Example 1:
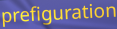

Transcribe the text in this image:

prefiguration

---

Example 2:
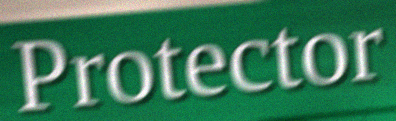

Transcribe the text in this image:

Protector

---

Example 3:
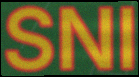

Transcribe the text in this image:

SNl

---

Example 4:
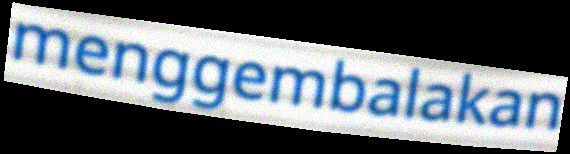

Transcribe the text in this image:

menggembalakan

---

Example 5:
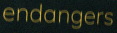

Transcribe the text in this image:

endangers